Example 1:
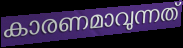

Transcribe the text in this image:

കാരണമാവുന്നത്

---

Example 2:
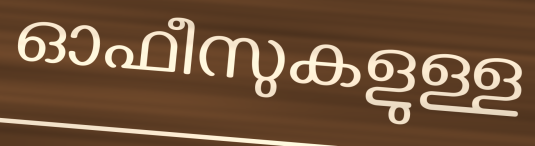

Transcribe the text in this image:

ഓഫീസുകളുള്ള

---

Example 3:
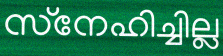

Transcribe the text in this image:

സ്‌നേഹിച്ചില്ല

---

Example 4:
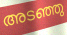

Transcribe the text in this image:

അടഞ്ഞു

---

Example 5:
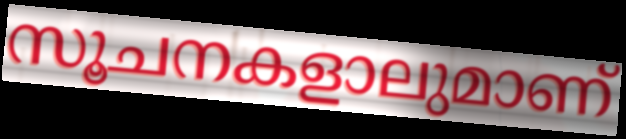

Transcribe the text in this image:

സൂചനകളാലുമാണ്